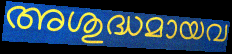
അശുദ്ധമായവ